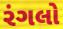
રંગલો